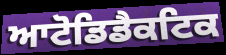
ਆਟੋਡਿਡੈਕਟਿਕ